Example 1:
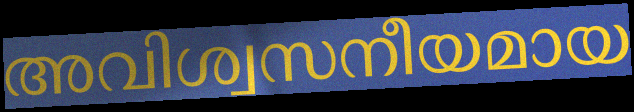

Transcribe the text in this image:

അവിശ്വസനീയമായ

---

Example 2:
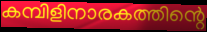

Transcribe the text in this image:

കമ്പിളിനാരകത്തിന്റെ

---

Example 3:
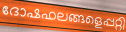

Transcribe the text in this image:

ദോഷഫലങ്ങളെപ്പറ്റി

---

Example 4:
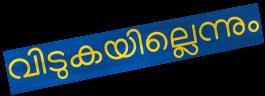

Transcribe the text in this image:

വിടുകയില്ലെന്നും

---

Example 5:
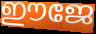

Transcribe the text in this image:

ഈജേ